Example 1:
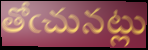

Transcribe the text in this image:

తోఁచునట్లు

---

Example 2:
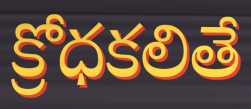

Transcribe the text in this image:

క్రోధకలితే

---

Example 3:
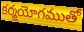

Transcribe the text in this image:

కర్మయోగముతో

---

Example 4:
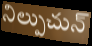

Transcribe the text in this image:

నిల్పుచున్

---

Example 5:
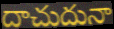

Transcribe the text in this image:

దాచుదునా